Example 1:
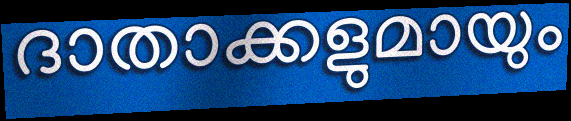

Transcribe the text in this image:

ദാതാക്കളുമായും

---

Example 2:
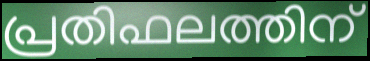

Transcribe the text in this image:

പ്രതിഫലത്തിന്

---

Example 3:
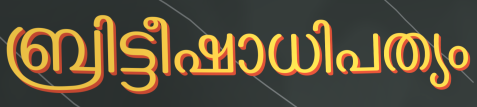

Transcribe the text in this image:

ബ്രിട്ടീഷാധിപത്യം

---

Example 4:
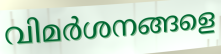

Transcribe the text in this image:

വിമർശനങ്ങളെ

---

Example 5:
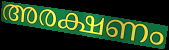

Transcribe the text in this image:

അരക്ഷണം